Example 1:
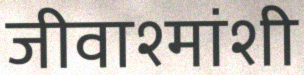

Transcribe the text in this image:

जीवाश्मांशी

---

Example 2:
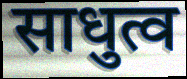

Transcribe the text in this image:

साधुत्व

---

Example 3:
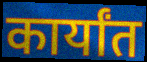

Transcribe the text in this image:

कार्यांत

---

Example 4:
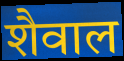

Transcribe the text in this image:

शैवाल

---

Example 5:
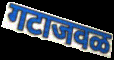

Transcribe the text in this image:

गटाजवळ